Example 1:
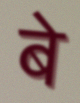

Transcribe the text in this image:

बे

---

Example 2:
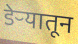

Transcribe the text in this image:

डेऱ्यातून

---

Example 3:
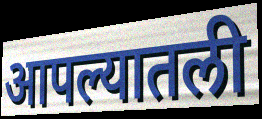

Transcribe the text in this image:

आपल्यातली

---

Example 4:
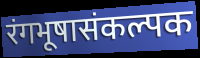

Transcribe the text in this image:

रंगभूषासंकल्पक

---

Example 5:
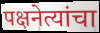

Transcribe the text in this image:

पक्षनेत्यांचा